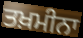
ਤਖ਼ਮੀਨਾ